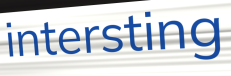
intersting